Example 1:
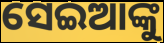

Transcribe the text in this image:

ସେଇଆଙ୍କୁ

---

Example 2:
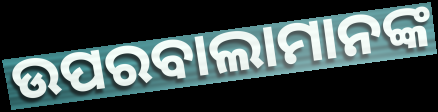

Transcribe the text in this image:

ଉପରବାଲାମାନଙ୍କ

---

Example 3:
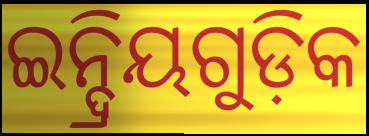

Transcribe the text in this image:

ଇନ୍ଦ୍ରିୟଗୁଡ଼ିକ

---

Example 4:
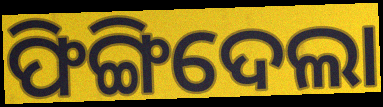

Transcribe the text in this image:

ଫିଙ୍ଗିଦେଲା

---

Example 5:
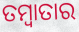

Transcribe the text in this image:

ତମ୍ବାତାର